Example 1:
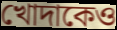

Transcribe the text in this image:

খোদাকেও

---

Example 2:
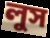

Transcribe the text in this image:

লুস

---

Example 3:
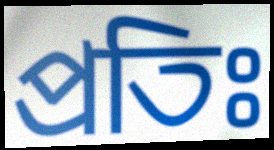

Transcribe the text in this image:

প্রতিঃ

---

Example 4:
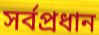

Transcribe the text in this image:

সর্বপ্রধান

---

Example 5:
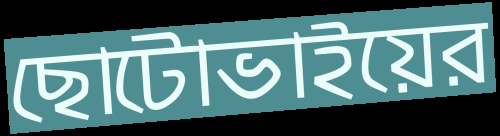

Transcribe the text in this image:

ছোটোভাইয়ের